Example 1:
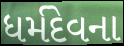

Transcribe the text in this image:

ધર્મદેવના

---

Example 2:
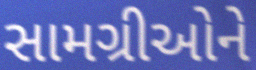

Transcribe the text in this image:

સામગ્રીઓને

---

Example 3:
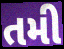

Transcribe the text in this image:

તમી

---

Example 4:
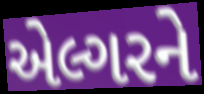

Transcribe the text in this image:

એલ્ગરને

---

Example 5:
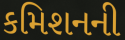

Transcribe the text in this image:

કમિશનની